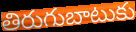
తిరుగుబాటుకు